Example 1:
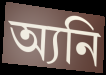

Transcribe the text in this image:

অ্যনি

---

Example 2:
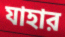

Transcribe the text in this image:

যাহার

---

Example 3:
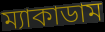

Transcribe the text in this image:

ম্যাকাডাম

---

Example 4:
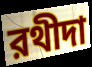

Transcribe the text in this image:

রথীদা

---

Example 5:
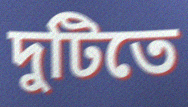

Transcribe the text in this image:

দুটিতে